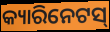
କ୍ୟାରିନେଟସ୍